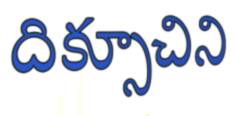
దిక్సూచిని